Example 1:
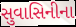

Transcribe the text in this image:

સુવાસિનીના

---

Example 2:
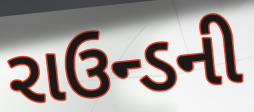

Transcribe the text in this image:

રાઉન્ડની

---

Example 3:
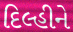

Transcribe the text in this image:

દિલ્હીને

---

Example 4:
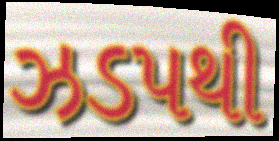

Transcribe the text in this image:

ઝડપથી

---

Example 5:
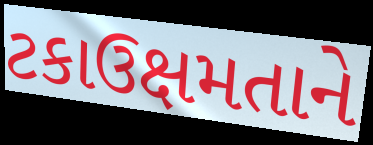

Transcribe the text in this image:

ટકાઉક્ષમતાને